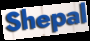
Shepal